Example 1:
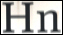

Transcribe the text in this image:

Hn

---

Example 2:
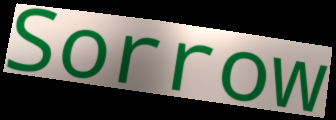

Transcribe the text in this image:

Sorrow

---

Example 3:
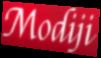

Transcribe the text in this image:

Modiji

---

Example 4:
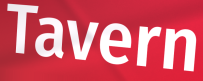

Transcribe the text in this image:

Tavern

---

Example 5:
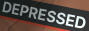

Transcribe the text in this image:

DEPRESSED